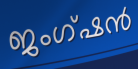
ജംഗ്ഷൻ